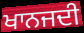
ਖਾਨਜਦੀ